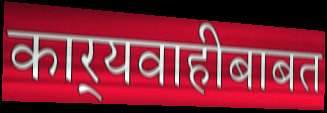
कार्यवाहीबाबत